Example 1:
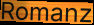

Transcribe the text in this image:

Romanz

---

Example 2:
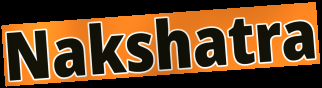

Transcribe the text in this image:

Nakshatra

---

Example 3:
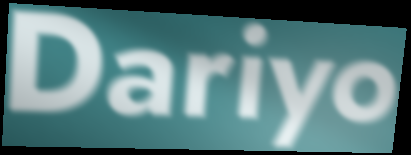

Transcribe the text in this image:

Dariyo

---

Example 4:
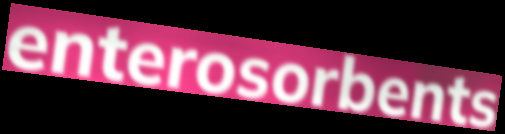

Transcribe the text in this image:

enterosorbents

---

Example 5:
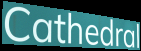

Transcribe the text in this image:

Cathedral